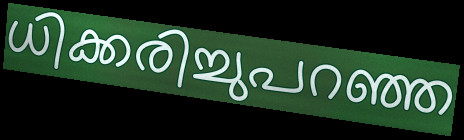
ധിക്കരിച്ചുപറഞ്ഞ